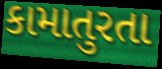
કામાતુરતા